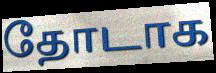
தோடாக